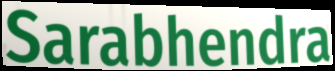
Sarabhendra